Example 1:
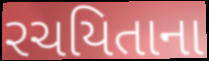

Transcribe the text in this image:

રચયિતાના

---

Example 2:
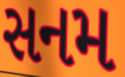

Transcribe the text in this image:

સનમ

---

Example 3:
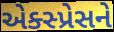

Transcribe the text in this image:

એક્સ્પ્રેસને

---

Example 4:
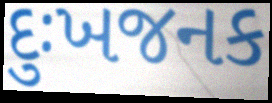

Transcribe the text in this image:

દુઃખજનક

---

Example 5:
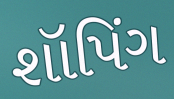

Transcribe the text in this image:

શૉપિંગ